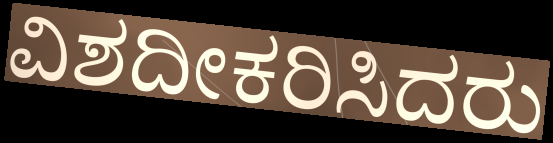
ವಿಶದೀಕರಿಸಿದರು